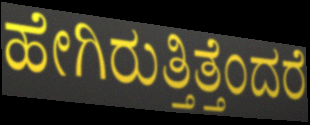
ಹೇಗಿರುತ್ತಿತ್ತೆಂದರೆ